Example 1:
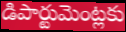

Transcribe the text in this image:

డిపార్టుమెంట్లకు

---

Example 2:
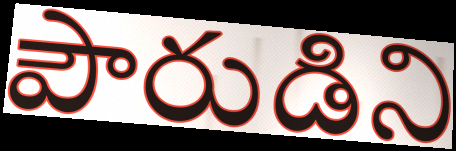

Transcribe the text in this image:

పౌరుడిని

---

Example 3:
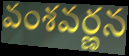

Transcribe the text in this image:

వంశవర్ణన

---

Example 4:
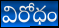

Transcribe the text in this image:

విరోధం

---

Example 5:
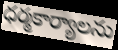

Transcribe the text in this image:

ధర్మకార్యాలను